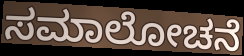
ಸಮಾಲೋಚನೆ